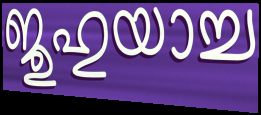
ജുഹുയാച്ച